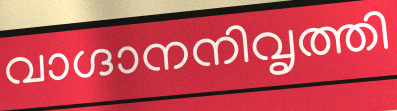
വാഗ്ദാനനിവൃത്തി